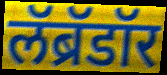
लॅब्रॅडॉर